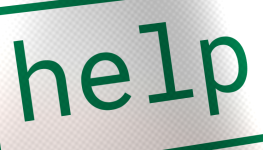
help